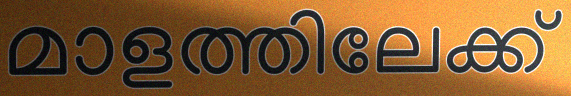
മാളത്തിലേക്ക്